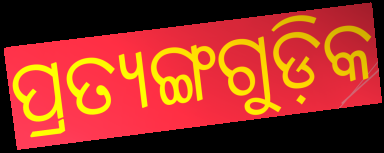
ପ୍ରତ୍ୟଙ୍ଗଗୁଡ଼ିକ